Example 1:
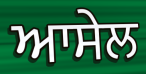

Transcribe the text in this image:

ਆਸੇਲ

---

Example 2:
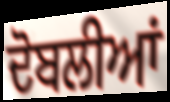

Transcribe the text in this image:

ਦੋਬਲੀਆਂ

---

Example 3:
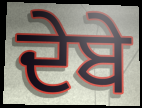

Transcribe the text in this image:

ਦੇਬੇ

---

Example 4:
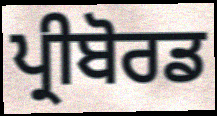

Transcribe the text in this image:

ਪ੍ਰੀਬੋਰਡ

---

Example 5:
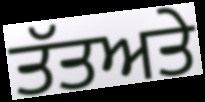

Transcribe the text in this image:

ਤੱਤਅਤੇ